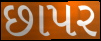
છાપર